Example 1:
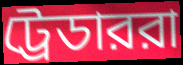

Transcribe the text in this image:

ট্রেডাররা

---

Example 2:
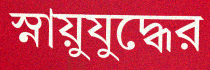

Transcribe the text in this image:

স্নায়ুযুদ্ধের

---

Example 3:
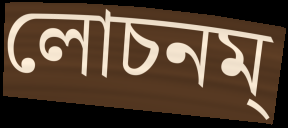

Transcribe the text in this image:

লোচনম্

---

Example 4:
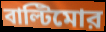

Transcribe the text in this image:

বাল্টিমোর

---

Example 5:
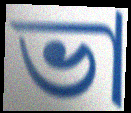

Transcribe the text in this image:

ভা